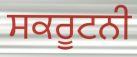
ਸਕਰੂਟਨੀ